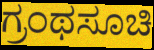
ಗ್ರಂಥಸೂಚಿ